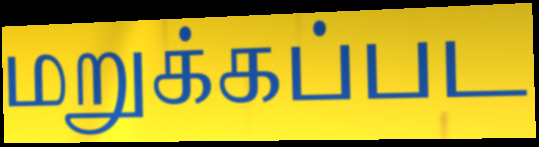
மறுக்கப்பட